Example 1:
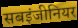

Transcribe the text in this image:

सबइंजीनियर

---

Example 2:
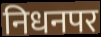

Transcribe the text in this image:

निधनपर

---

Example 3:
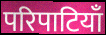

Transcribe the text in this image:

परिपाटियाँ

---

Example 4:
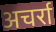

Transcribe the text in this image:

अचर्रा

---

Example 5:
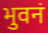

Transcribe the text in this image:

भुवनं